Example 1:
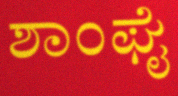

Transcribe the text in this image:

ಶಾಂಘೈ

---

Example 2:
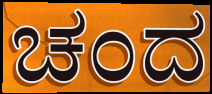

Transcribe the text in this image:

ಚಂದ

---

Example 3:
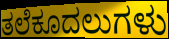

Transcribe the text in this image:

ತಲೆಕೂದಲುಗಳು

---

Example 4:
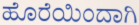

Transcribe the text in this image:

ಹೊರೆಯಿಂದಾಗಿ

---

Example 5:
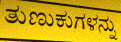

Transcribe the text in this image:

ತುಣುಕುಗಳನ್ನು